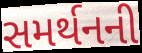
સમર્થનની